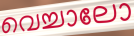
വെച്ചാലോ